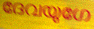
ദേവയുഗേ